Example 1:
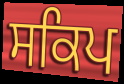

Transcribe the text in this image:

ਸਕਿਪ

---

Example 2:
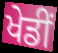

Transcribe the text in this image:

ਖੇਡੀਂ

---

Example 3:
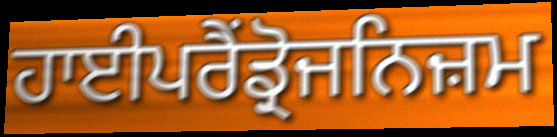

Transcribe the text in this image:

ਹਾਈਪਰੈਂਡ੍ਰੋਜਨਿਜ਼ਮ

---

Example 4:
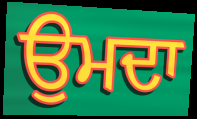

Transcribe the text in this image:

ਉਮਦਾ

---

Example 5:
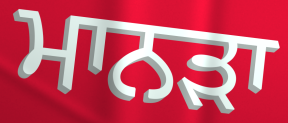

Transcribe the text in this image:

ਮਾਨੜਾ